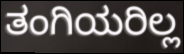
ತಂಗಿಯರಿಲ್ಲ